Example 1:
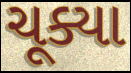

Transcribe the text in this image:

ચૂક્યા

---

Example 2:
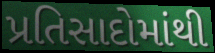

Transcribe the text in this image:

પ્રતિસાદોમાંથી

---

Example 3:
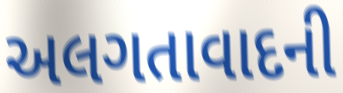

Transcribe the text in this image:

અલગતાવાદની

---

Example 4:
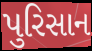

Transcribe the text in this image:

પુરિસાન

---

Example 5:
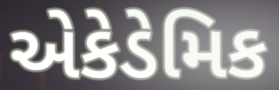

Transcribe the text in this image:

એકેડેમિક